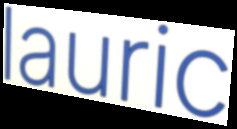
lauric